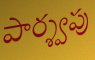
పార్శ్వపు